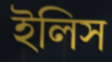
ইলিস